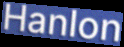
Hanlon